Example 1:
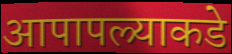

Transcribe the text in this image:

आपापल्याकडे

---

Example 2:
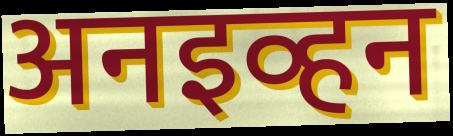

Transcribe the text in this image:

अनइव्हन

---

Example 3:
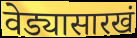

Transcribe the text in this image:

वेड्यासारखं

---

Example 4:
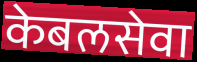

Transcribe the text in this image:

केबलसेवा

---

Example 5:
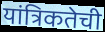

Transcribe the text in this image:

यांत्रिकतेची